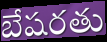
బేషరతు